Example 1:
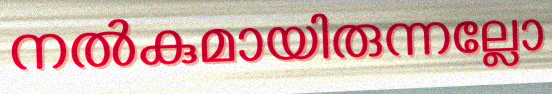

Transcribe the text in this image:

നൽകുമായിരുന്നല്ലോ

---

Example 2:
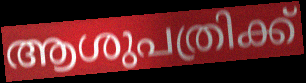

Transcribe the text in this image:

ആശുപത്രിക്ക്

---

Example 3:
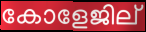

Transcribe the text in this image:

കോളേജില്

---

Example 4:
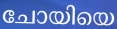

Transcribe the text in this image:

ചോയിയെ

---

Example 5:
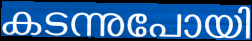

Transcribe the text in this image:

കടന്നുപോയി